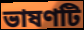
ভাষণটি